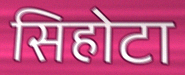
सिहोटा